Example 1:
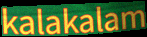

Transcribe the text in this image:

kalakalam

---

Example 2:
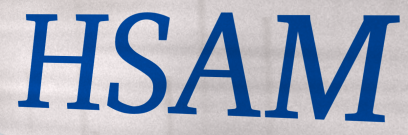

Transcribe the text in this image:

HSAM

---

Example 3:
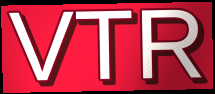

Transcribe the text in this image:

VTR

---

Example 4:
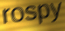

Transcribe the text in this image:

rospy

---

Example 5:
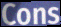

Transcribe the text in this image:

Cons